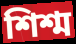
শিশ্ম